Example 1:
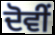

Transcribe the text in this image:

ਦੋਵੀਂ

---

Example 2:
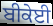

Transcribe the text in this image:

ਬੀਕੇਈ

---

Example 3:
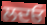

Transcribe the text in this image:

ਲਦਓ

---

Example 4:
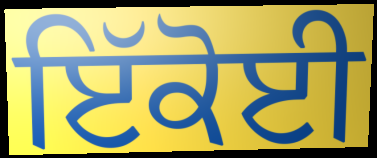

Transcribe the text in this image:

ਇੱਕੋਈ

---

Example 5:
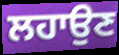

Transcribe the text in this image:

ਲਹਾਉਣ